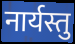
नार्यस्तु